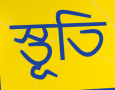
স্তূতি